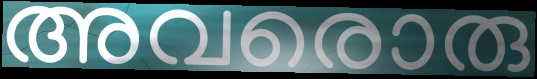
അവരൊരു